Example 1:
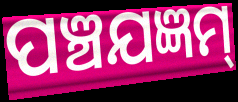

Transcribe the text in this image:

ପଞ୍ଚଯଜ୍ଞମ୍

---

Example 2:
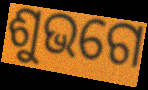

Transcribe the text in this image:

ଶୁଭଗେ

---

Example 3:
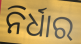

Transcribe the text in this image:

ନିର୍ଧାର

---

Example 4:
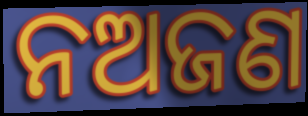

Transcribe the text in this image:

ନଅଜଣ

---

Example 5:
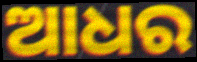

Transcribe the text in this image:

ଆଧର